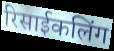
रिसाईकलिंग